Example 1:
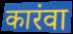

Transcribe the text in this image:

कारंवा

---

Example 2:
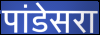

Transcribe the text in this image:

पांडेसरा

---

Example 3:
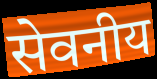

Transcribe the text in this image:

सेवनीय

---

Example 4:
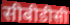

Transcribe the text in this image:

सीबीडीसी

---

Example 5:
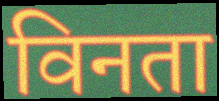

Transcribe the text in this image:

विनता